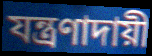
যন্ত্রণাদায়ী